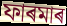
ফাৰমাৰ